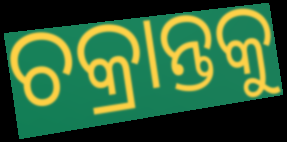
ଚକ୍ରାନ୍ତକୁ